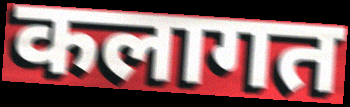
कलागत